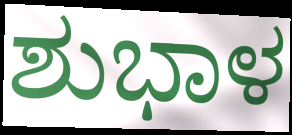
ಶುಭಾಳ